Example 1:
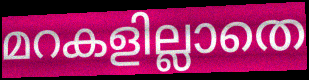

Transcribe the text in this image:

മറകളില്ലാതെ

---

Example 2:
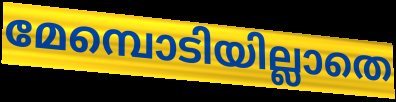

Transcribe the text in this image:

മേമ്പൊടിയില്ലാതെ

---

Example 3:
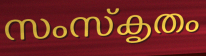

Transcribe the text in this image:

സംസ്‌കൃതം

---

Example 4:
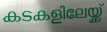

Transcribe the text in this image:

കടകളിലേയ്ക്ക്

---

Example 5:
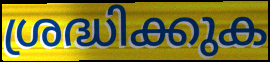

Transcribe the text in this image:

ശ്രദ്ധിക്കുക